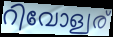
റിവോള്വര്